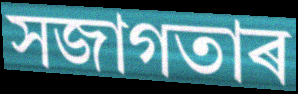
সজাগতাৰ